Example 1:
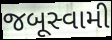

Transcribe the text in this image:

જબૂસ્વામી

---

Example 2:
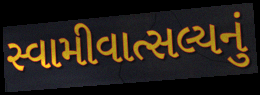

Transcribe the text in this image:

સ્વામીવાત્સલ્યનું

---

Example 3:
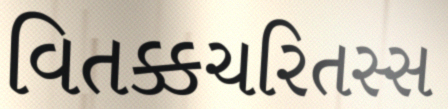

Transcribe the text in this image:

વિતક્કચરિતસ્સ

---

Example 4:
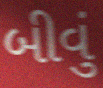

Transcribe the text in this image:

બીવું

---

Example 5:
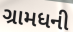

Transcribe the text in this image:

ગ્રામધની